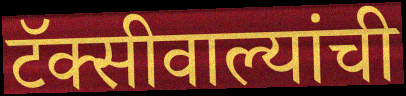
टॅक्सीवाल्यांची